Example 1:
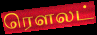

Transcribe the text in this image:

ரௌலட்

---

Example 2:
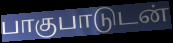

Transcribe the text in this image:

பாகுபாடுடன்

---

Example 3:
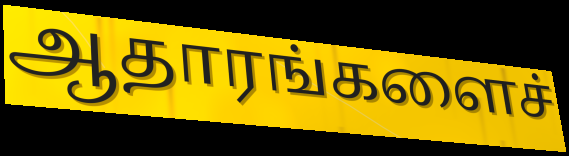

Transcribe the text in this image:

ஆதாரங்களைச்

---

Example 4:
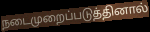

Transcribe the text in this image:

நடைமுறைப்படுத்தினால்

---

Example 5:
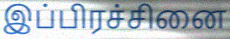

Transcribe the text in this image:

இப்பிரச்சினை